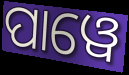
ପାୱେ